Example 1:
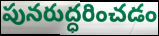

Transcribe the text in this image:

పునరుద్ధరించడం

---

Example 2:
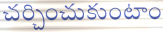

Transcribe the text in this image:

చర్చించుకుంటాం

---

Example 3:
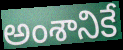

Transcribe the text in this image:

అంశానికే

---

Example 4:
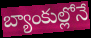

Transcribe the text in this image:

బ్యాంకుల్లోనే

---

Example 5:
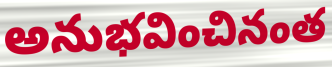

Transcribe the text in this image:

అనుభవించినంత